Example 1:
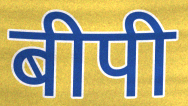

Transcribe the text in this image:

बीपी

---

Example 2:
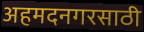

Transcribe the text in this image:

अहमदनगरसाठी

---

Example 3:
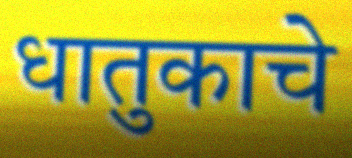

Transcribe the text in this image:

धातुकाचे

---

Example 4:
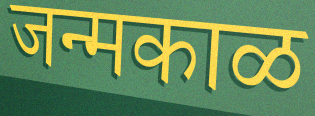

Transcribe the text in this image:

जन्मकाळ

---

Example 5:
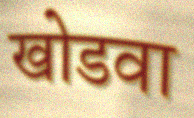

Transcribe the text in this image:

खोडवा